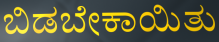
ಬಿಡಬೇಕಾಯಿತು